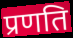
प्रणति